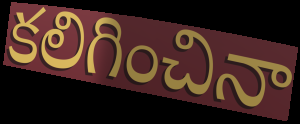
కలిగించినా